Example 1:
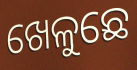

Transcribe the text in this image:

ଖେଳୁଛେ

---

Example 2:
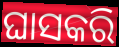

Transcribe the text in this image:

ଘାସକରି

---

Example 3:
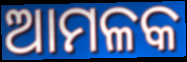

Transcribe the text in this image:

ଆମଳକ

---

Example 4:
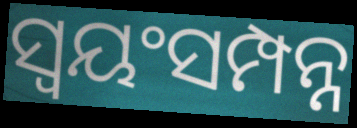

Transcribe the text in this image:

ସ୍ବୟଂସମ୍ପନ୍ନ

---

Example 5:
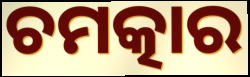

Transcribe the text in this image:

ଚମତ୍କାର